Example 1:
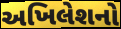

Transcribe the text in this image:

અખિલેશનો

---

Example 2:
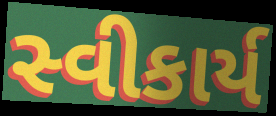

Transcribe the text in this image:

સ્વીકાર્ય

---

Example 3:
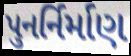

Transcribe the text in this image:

પુનર્નિર્માણ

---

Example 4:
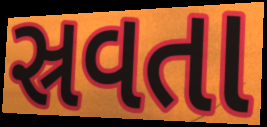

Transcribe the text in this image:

સ્રવતા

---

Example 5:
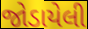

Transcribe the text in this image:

જોડાયેલી